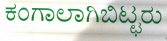
ಕಂಗಾಲಾಗಿಬಿಟ್ಟರು